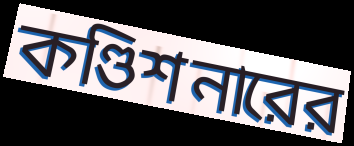
কণ্ডিশনারের